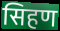
सिहण